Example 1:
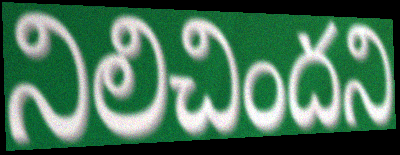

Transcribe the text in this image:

నిలిచిందని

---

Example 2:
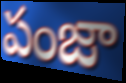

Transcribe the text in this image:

పంజా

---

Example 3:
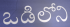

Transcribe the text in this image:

ఒడిలోని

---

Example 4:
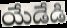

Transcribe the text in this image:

యేడేడి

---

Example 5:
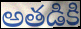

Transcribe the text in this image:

అతడికి